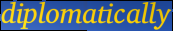
diplomatically